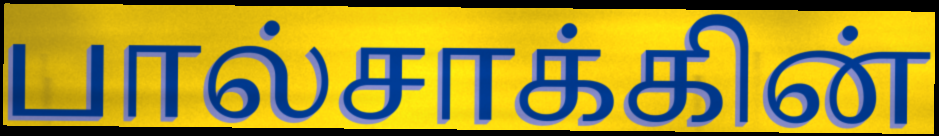
பால்சாக்கின்